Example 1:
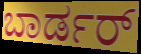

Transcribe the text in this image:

ಬಾರ್ಡರ್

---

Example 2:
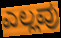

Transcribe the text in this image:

ಎಲ್ಲವು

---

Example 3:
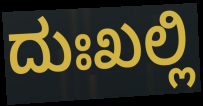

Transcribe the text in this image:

ದುಃಖಲ್ಲಿ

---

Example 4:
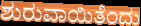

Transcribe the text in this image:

ಶುರುವಾಯಿತೆಂದು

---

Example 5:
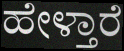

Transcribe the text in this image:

ಹೇಳ್ತಾರೆ